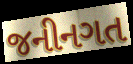
જનીનગત